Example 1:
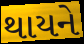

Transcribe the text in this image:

થાયને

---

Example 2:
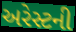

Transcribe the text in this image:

અરેસ્ટની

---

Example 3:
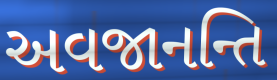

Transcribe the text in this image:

અવજાનન્તિ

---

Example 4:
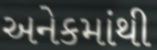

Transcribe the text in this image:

અનેકમાંથી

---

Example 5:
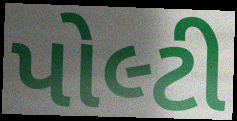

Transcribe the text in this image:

પોલ્ટી